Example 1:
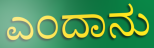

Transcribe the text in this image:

ಎಂದಾನು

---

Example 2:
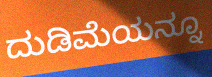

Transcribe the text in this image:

ದುಡಿಮೆಯನ್ನೂ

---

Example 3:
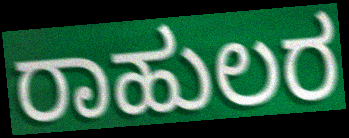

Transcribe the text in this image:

ರಾಹುಲರ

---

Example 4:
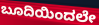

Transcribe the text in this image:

ಬೂದಿಯಿಂದಲೇ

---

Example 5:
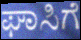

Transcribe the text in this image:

ಘಾಸಿಗೆ